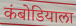
कंबोडियाला